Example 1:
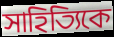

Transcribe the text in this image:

সাহিত্যিকে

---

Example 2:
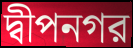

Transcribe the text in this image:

দ্বীপনগর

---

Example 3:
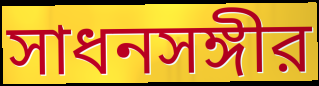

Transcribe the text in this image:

সাধনসঙ্গীর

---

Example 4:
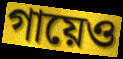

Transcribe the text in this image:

গায়েও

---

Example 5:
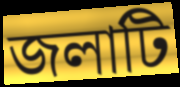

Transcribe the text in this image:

জলাটি